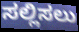
ಸಲ್ಲಿಸಲು